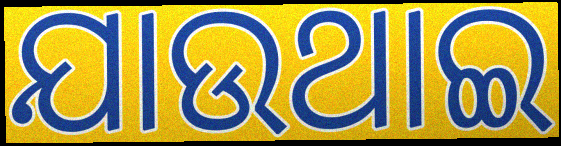
ଯାଉଥାଇ